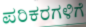
ಪರಿಕರಗಳಿಗೆ